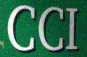
CCI